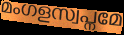
മംഗളസ്വപ്നമേ